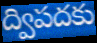
ద్విపదకు